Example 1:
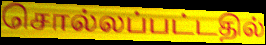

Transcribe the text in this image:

சொல்லப்பட்டதில்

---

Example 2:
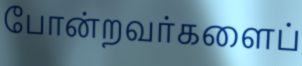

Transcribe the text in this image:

போன்றவர்களைப்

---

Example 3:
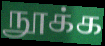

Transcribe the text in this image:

நூக்க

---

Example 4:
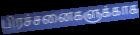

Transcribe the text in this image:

பிரச்சனைகளுக்காக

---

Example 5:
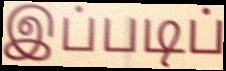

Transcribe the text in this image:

இப்படிப்